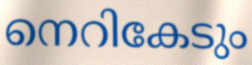
നെറികേടും